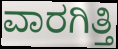
ವಾರಗಿತ್ತಿ